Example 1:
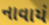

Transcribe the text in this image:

નાવાયં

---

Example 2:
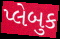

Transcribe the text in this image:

પ્લેબુક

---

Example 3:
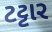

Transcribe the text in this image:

ટટ્ટાર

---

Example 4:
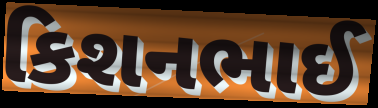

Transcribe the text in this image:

કિશનભાઈ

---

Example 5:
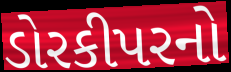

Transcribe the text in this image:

ડોરકીપરનો